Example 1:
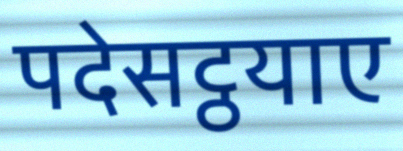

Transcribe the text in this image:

पदेसट्ठयाए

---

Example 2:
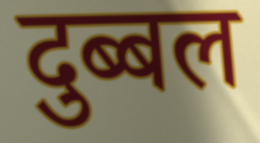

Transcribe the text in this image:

दुब्बल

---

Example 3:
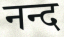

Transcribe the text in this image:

नन्द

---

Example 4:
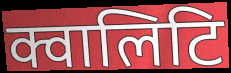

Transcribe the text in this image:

क्वालिटि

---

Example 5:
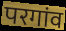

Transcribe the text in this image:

परगांव